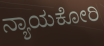
ನ್ಯಾಯಕೋರಿ